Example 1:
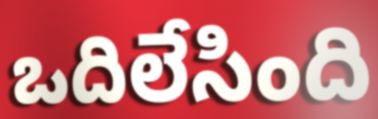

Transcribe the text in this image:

ఒదిలేసింది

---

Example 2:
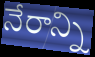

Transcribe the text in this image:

నేరాన్ని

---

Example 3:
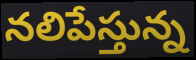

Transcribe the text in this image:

నలిపేస్తున్న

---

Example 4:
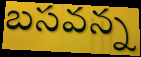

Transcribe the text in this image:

బసవన్న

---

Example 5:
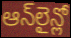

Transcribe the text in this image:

ఆన్‌లైన్లో